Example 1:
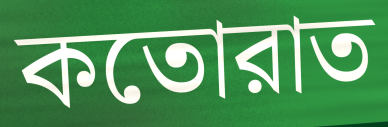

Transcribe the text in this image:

কতোরাত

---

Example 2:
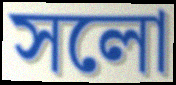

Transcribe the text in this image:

সলো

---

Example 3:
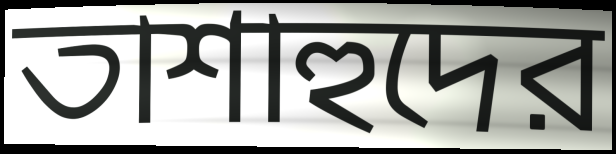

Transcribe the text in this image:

তাশাহুদের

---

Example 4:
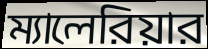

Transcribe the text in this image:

ম্যালেরিয়ার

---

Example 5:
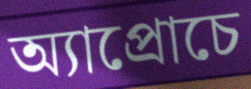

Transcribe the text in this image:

অ্যাপ্রোচে